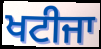
ਖਟੀਜਾ